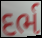
દર્ભ